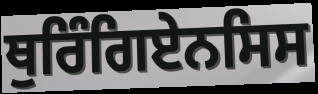
ਥੁਰਿੰਗਿਏਨਸਿਸ